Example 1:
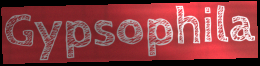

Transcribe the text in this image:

Gypsophila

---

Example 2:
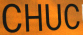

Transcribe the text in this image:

CHUC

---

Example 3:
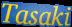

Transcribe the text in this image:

Tasaki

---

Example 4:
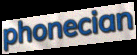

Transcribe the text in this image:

phonecian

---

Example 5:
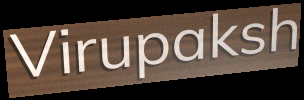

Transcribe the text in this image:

Virupaksh